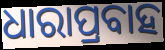
ଧାରାପ୍ରବାହ